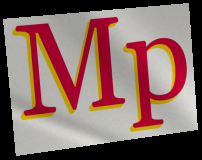
Mp